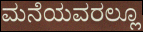
ಮನೆಯವರಲ್ಲೂ